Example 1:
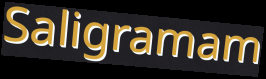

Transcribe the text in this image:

Saligramam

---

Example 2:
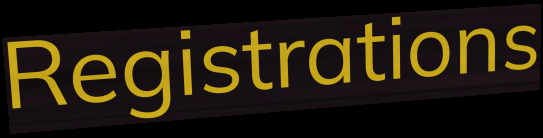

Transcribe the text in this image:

Registrations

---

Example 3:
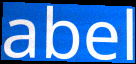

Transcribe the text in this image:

abel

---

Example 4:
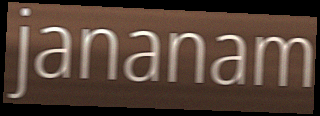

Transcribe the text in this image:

jananam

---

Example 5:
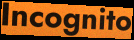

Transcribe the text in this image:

Incognito